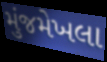
મુંજમેખલા